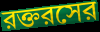
রক্তরসের